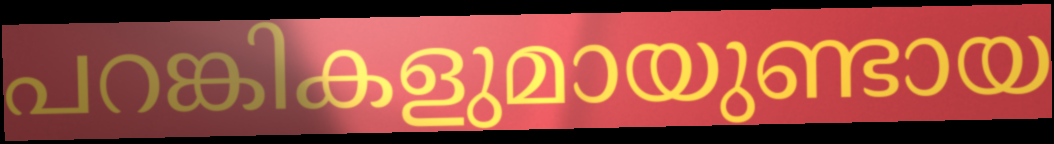
പറങ്കികളുമായുണ്ടായ